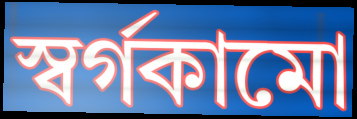
স্বর্গকামো